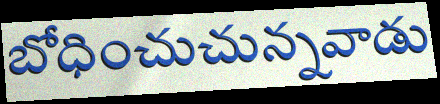
బోధించుచున్నవాడు